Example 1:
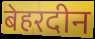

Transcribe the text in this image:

बेहरदीन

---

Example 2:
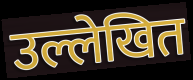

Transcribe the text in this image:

उल्‍लेखित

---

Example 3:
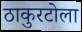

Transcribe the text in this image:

ठाकुरटोला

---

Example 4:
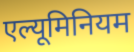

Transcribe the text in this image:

एल्यूमिनियम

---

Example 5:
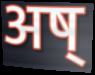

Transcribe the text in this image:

अष्